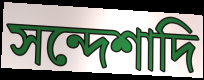
সন্দেশাদি